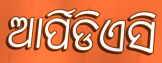
ଆର୍ପିଡିଏସି